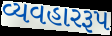
વ્યવહારરૂપ